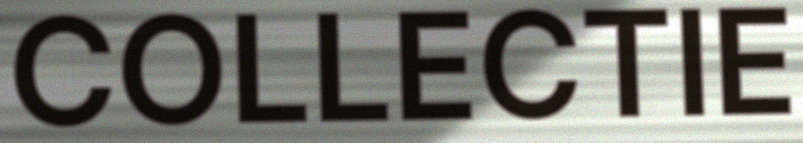
COLLECTIE